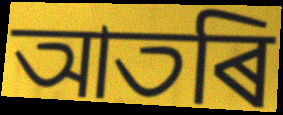
আতৰি